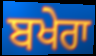
ਬਖੇਰਾ